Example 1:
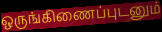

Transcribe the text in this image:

ஒருங்கிணைப்புடனும்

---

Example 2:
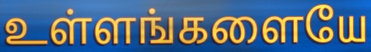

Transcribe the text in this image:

உள்ளங்களையே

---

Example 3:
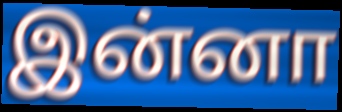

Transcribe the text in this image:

இன்னா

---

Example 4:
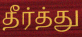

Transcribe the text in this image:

தீர்த்து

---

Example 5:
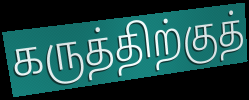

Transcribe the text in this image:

கருத்திற்குத்